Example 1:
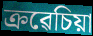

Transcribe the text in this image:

ক্ৰৱেচিয়া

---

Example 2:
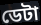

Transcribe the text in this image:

ডেটা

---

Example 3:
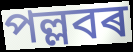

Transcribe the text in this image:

পল্লবৰ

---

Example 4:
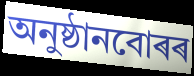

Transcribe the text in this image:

অনুষ্ঠানবোৰৰ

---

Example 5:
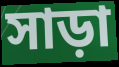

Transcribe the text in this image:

সাড়া